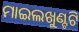
ମାଇଲଖୁଣ୍ଟଟି